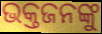
ଭକ୍ତଜନଙ୍କୁ